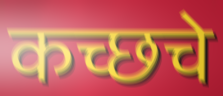
कच्छचे